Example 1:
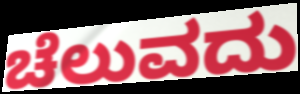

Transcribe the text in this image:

ಚೆಲುವದು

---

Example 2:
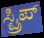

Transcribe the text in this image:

ಸ್ಟ್ರಿಪ್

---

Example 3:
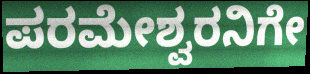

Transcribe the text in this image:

ಪರಮೇಶ್ವರನಿಗೇ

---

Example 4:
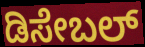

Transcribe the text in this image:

ಡಿಸೇಬಲ್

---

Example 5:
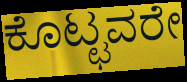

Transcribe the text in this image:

ಕೊಟ್ಟವರೇ